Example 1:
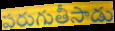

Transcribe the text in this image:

పరుగుతీసాడు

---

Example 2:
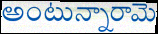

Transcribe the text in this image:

అంటున్నారామె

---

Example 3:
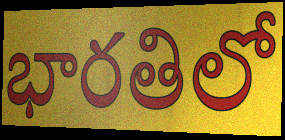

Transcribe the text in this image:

భారతిలో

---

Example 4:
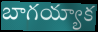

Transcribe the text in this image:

బాగయ్యాక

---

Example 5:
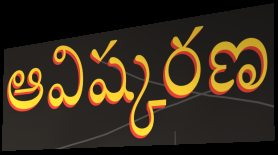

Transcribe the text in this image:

ఆవిష్కరణ